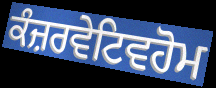
ਕੰਜ਼ਰਵੇਟਿਵਹੋਮ